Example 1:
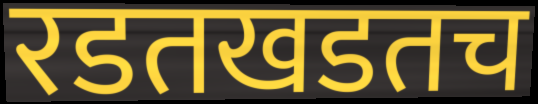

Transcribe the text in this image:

रडतखडतच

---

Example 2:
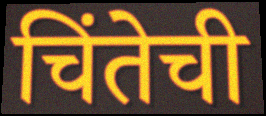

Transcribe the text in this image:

चिंतेची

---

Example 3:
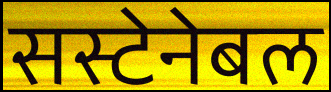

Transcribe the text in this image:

सस्टेनेबल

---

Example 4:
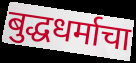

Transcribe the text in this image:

बुद्धधर्माचा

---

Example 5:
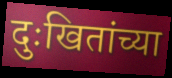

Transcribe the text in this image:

दुःखितांच्या